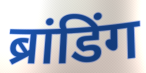
ब्रांडिंग